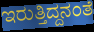
ಇರುತ್ತಿದ್ದನಂತೆ